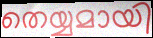
തെയ്യമായി